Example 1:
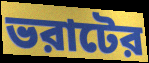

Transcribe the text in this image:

ভরাটের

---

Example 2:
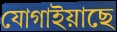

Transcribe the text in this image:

যোগাইয়াছে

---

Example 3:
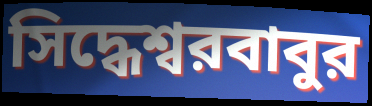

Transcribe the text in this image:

সিদ্ধেশ্বরবাবুর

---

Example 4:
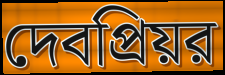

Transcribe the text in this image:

দেবপ্রিয়র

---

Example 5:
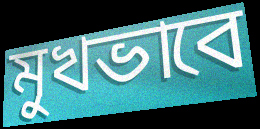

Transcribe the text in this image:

মুখভাবে